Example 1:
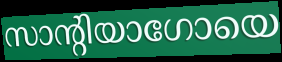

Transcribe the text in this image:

സാന്റിയാഗോയെ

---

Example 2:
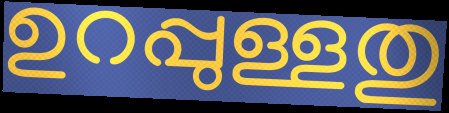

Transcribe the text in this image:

ഉറപ്പുള്ളതു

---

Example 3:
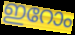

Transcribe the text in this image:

ഇറോം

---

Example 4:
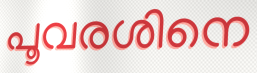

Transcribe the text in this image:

പൂവരശിനെ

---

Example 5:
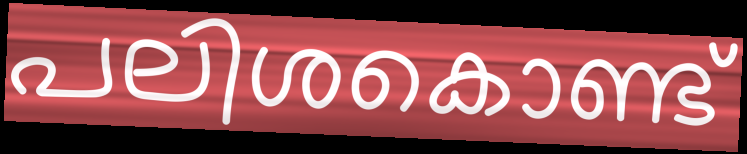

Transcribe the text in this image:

പലിശകൊണ്ട്